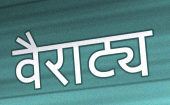
वैराट्य